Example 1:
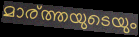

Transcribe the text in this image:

മാര്ത്തയുടെയും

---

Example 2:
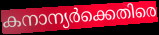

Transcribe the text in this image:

കനാന്യർക്കെതിരെ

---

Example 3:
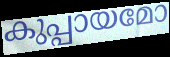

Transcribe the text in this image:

കുപ്പായമോ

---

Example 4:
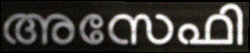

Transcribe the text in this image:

അസേഫി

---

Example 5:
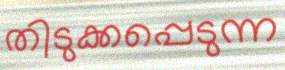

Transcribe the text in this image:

തിടുക്കപ്പെടുന്ന